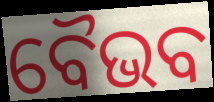
ବୈଭବ